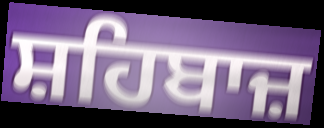
ਸ਼ਹਿਬਾਜ਼